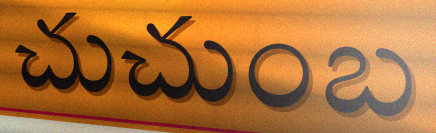
చుచుంబ